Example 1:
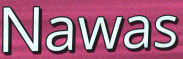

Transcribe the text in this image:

Nawas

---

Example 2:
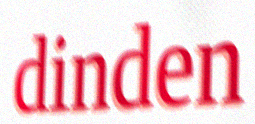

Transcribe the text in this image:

dinden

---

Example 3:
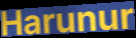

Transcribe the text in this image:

Harunur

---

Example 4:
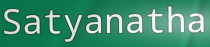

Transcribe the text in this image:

Satyanatha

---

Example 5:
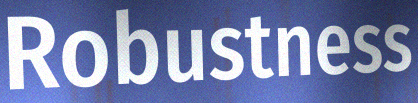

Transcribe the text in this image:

Robustness